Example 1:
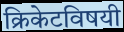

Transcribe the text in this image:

क्रिकेटविषयी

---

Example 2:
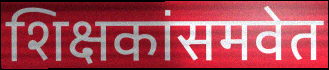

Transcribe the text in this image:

शिक्षकांसमवेत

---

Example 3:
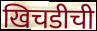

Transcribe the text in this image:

खिचडीची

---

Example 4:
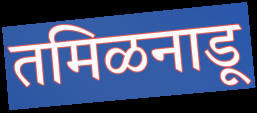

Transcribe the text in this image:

तमिळनाडू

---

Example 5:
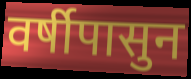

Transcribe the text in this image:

वर्षीपासुन